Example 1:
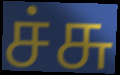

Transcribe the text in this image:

ச்சு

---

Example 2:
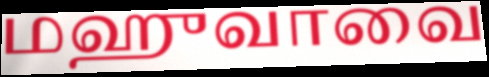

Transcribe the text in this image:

மஹுவாவை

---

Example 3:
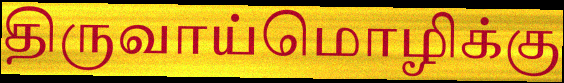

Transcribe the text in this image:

திருவாய்மொழிக்கு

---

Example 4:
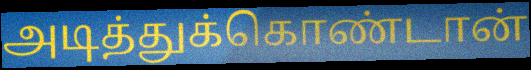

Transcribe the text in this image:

அடித்துக்கொண்டான்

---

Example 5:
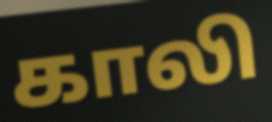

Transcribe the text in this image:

காலி